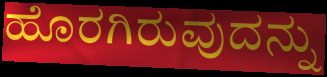
ಹೊರಗಿರುವುದನ್ನು